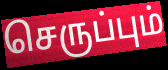
செருப்பும்